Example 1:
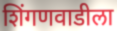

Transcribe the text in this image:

शिंगणवाडीला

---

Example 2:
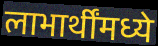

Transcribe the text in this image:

लाभार्थींमध्ये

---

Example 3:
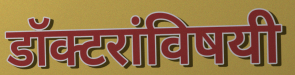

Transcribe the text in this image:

डॉक्टरांविषयी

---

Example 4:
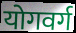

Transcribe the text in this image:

योगवर्ग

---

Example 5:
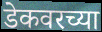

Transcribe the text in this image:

डेकवरच्या